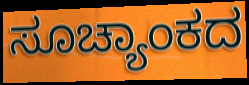
ಸೂಚ್ಯಾಂಕದ